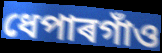
ধেপাৰগাঁও